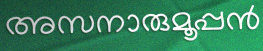
അസനാരുമൂപ്പൻ